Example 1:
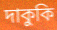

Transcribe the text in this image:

দাকুকি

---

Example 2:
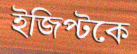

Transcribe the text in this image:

ইজিপ্টকে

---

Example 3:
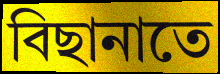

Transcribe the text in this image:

বিছানাতে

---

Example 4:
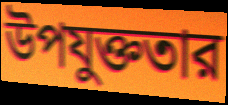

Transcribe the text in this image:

উপযুক্ততার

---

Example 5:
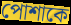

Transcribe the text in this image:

পোশাকে